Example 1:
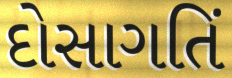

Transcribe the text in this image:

દોસાગતિં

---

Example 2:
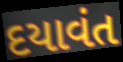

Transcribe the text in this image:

દયાવંત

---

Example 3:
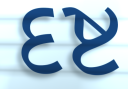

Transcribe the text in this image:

દષ્ટ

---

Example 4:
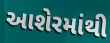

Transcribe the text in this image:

આશેરમાંથી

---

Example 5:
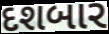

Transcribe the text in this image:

દશબાર